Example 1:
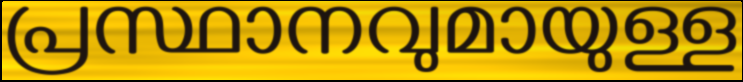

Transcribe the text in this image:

പ്രസ്ഥാനവുമായുള്ള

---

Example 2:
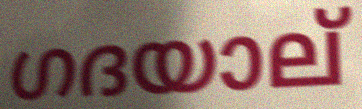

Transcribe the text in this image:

ഗദയാല്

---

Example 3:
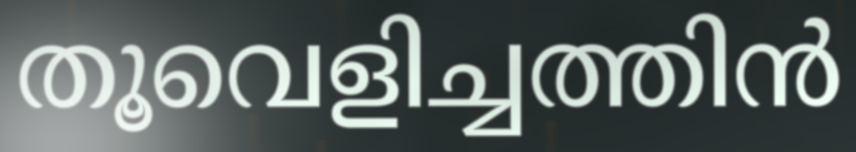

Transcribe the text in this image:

തൂവെളിച്ചത്തിൻ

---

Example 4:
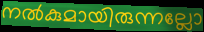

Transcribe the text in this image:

നൽകുമായിരുന്നല്ലോ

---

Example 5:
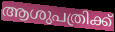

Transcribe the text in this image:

ആശുപത്രിക്ക്